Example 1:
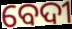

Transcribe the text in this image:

ବେଦୀ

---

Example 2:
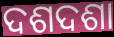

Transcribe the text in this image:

ଦଶଦଶା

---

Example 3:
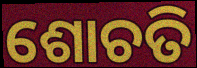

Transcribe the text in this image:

ଶୋଚତି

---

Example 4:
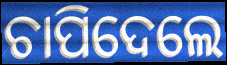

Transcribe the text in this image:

ଚାପିଦେଲେ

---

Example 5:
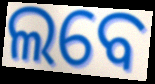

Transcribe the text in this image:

ଲବେ